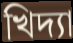
খিদ্যা